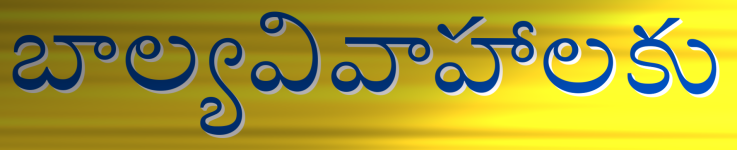
బాల్యవివాహాలకు